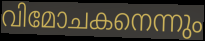
വിമോചകനെന്നും